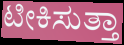
ಟೀಕಿಸುತ್ತಾ